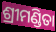
ଶ୍ରୀମଣ୍ଡିତା